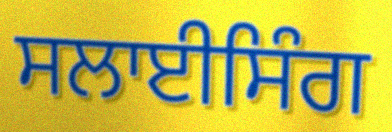
ਸਲਾਈਸਿੰਗ